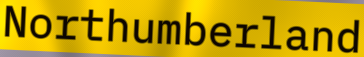
Northumberland